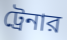
ট্রেনার